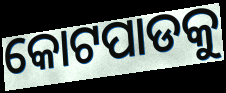
କୋଟପାଡକୁ